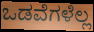
ಒಡವೆಗಳೆಲ್ಲ